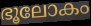
ഭൂലോകം